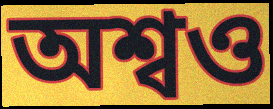
অশ্বও